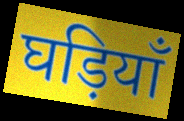
घड़ियाँ